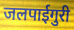
जलपाईगुरी